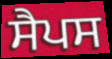
ਸੈਪਸ